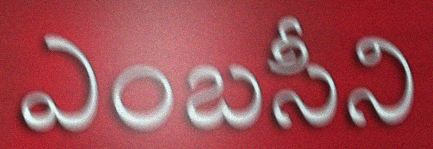
ఎంబసీని